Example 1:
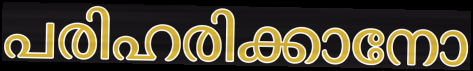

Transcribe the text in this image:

പരിഹരിക്കാനോ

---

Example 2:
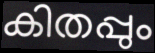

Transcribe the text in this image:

കിതപ്പും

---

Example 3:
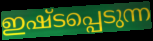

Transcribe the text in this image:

ഇഷ്ടപ്പെടുന്ന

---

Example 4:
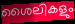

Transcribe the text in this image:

ശൈലികളും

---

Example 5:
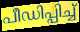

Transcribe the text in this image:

പീഡിപ്പിച്ച്